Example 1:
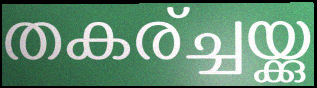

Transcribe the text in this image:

തകര്ച്ചയ്ക്കു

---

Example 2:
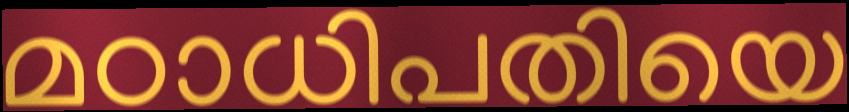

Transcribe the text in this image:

മഠാധിപതിയെ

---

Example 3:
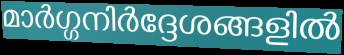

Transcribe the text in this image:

മാർഗ്ഗനിർദ്ദേശങ്ങളിൽ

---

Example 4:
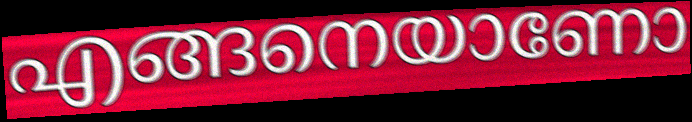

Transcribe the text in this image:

എങ്ങനെയാണോ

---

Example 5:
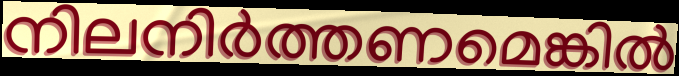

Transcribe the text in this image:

നിലനിർത്തണമെങ്കിൽ